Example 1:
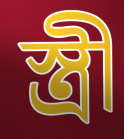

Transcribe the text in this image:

স্ত্ৰী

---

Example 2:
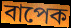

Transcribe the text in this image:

বাপেক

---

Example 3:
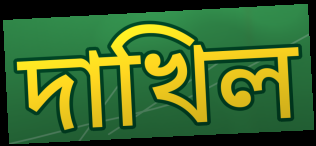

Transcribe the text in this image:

দাখিল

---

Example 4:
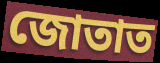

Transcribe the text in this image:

জোতাত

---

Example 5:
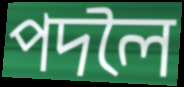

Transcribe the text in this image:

পদলৈ